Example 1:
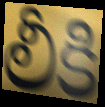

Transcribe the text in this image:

లీకి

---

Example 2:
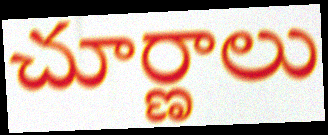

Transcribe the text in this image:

చూర్ణాలు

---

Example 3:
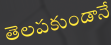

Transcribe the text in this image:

తెలపకుండానే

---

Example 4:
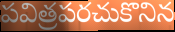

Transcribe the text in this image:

పవిత్రపరచుకొనిన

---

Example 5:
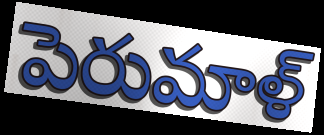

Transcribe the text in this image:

పెరుమాళ్